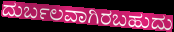
ದುರ್ಬಲವಾಗಿರಬಹುದು